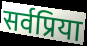
सर्वप्रिया